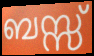
ബസ്സ്